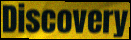
Discovery